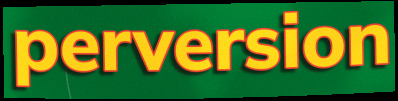
perversion